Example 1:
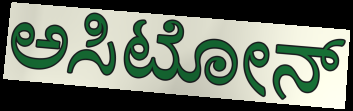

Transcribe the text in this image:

ಅಸಿಟೋನ್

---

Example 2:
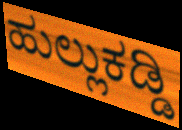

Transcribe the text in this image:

ಹುಲ್ಲುಕಡ್ಡಿ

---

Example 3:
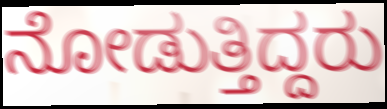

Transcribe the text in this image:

ನೋಡುತ್ತಿದ್ದರು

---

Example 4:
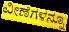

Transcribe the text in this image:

ವೀಣೆಗಳನ್ನೂ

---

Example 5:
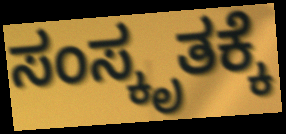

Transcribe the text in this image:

ಸಂಸ್ಕೃತಕ್ಕೆ